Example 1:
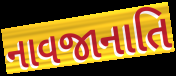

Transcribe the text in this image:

નાવજાનાતિ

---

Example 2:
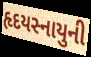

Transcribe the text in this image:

હૃદયસ્નાયુની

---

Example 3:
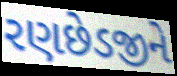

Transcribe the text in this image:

રણછેડજીને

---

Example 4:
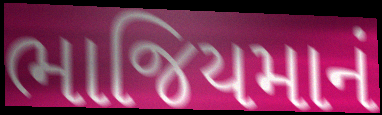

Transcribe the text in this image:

ભાજિયમાનં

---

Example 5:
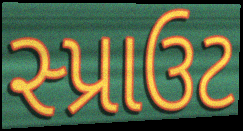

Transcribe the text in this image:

સ્પ્રાઉટ